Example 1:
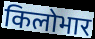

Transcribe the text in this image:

किलोभार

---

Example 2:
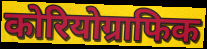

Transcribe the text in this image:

कोरियोग्राफिक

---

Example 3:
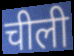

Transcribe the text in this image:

चीली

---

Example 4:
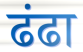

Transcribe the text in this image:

ढंढा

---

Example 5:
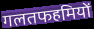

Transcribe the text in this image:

गलतफहमियों